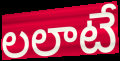
లలాటే